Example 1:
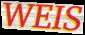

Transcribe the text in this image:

WEIS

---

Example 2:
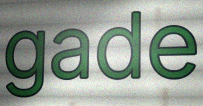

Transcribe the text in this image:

gade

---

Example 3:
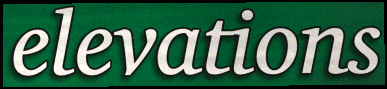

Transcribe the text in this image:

elevations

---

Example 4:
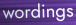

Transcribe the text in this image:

wordings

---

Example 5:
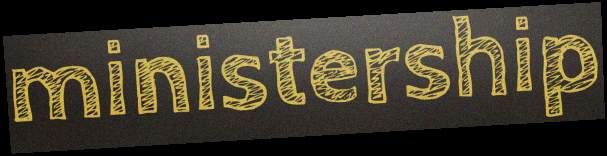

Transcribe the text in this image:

ministership